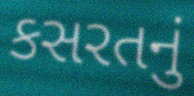
કસરતનું